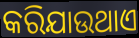
କରିଯାଉଥାଏ